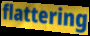
flattering